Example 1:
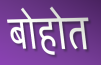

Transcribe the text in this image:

बोहोत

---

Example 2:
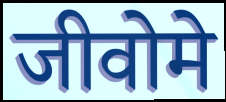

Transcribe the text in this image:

जीवोमे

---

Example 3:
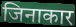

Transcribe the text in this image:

जिनाकार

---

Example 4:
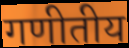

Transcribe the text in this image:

गणीतीय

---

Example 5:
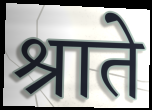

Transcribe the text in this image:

श्राते